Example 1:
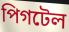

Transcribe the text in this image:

পিগটেল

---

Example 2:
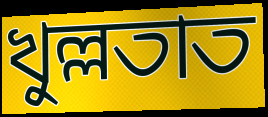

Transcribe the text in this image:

খুল্লতাত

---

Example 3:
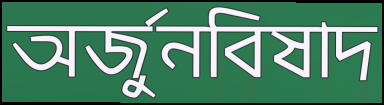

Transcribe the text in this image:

অর্জুনবিষাদ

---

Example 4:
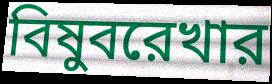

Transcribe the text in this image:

বিষুবরেখার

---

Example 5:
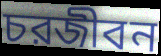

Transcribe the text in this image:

চরজীবন